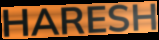
HARESH